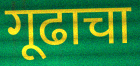
गूढाचा